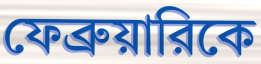
ফেব্রুয়ারিকে